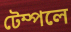
টেম্পলে